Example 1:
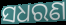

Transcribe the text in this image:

ସଧରଣ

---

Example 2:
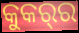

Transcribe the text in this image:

କୁକର୍‌ର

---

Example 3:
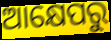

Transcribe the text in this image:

ଆକ୍ଷେପରୁ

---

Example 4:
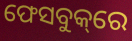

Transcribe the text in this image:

ଫେସବୁକ୍‌ରେ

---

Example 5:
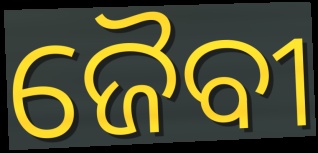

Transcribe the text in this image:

ଜୈବୀ